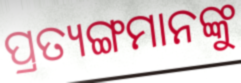
ପ୍ରତ୍ୟଙ୍ଗମାନଙ୍କୁ